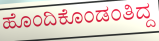
ಹೊಂದಿಕೊಂಡಂತಿದ್ದ